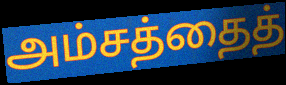
அம்சத்தைத்